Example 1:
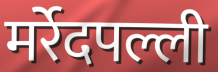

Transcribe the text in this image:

मर्रेदपल्ली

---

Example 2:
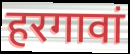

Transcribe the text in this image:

हरगावां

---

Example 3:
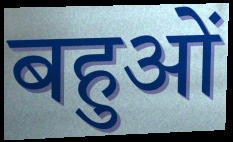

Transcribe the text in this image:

बहुओं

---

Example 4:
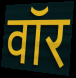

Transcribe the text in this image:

वॉर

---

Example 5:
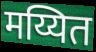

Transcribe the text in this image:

मय्यित